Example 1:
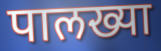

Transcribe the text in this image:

पालख्या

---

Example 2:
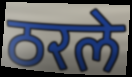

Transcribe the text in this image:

ठरले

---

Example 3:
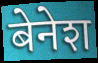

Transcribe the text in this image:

बेनेश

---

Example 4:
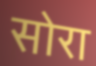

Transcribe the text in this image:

सोरा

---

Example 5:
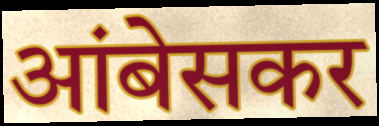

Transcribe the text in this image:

आंबेसकर